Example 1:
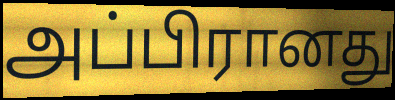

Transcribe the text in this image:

அப்பிரானது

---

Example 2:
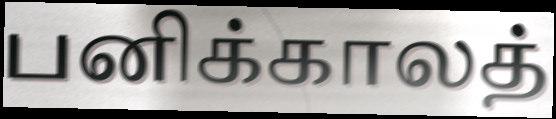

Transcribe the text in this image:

பனிக்காலத்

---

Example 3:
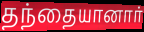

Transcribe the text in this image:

தந்தையானார்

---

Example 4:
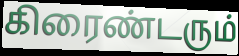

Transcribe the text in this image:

கிரைண்டரும்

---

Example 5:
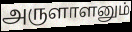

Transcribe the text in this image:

அருளாளனும்